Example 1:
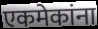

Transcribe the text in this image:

एकमेकांना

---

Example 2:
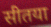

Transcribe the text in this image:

सीतया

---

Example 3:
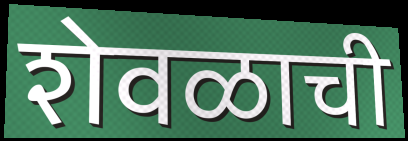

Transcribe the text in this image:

शेवळाची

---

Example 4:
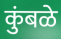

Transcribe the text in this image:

कुंबळे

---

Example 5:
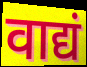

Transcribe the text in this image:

वाद्यं